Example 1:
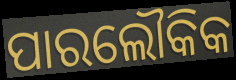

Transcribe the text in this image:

ପାରଲୌକିକ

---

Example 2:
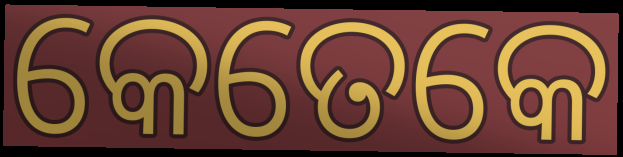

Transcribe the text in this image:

କେତେକେ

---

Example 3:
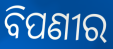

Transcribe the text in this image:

ବିପଣୀର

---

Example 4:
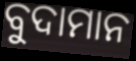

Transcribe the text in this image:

ବୁଦାମାନ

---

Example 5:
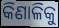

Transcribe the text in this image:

କିଣାଳିକୁ